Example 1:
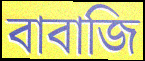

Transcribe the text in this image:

বাবাজি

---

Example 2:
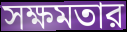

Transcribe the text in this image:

সক্ষমতার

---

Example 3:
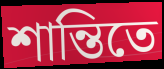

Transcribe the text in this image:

শান্তিতে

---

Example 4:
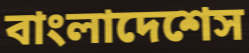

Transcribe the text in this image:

বাংলাদেশেস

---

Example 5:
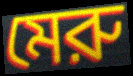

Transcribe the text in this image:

মেরু